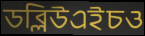
ডব্লিউএইচও